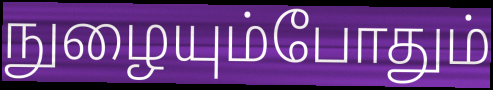
நுழையும்போதும்